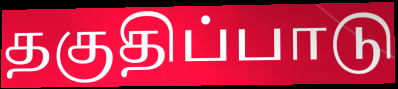
தகுதிப்பாடு